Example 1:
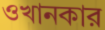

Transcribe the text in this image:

ওখানকার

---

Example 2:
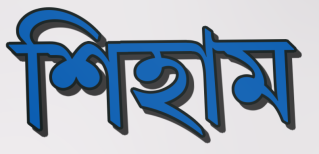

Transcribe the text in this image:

শিহাম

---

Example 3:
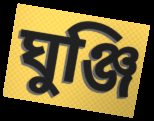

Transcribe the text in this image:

ঘুঞ্জি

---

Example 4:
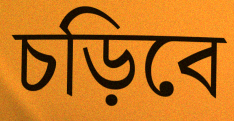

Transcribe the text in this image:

চড়িবে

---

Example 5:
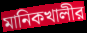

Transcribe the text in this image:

মানিকখালীর